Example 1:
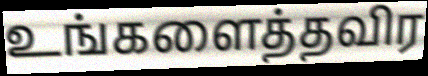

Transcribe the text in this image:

உங்களைத்தவிர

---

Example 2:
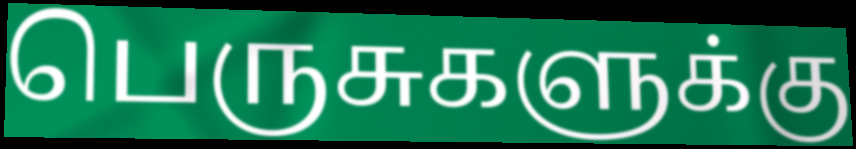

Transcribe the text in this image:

பெருசுகளுக்கு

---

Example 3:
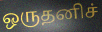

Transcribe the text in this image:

ஒருதனிச்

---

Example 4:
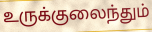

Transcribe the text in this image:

உருக்குலைந்தும்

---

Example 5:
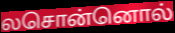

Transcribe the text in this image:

லசொன்னொல்